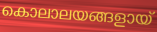
കൊലാലയങ്ങളായ്